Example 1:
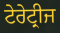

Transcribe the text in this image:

ਟੇਰੇਟ੍ਰੀਜ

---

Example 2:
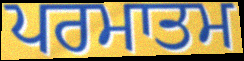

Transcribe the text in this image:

ਪਰਮਾਤਮ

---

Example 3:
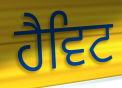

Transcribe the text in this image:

ਹੈਵਿਟ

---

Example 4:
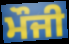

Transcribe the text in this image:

ਮੌਜੀ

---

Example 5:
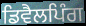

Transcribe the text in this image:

ਡਿਵੈਲਪਿੰਗ